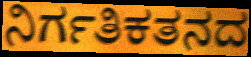
ನಿರ್ಗತಿಕತನದ